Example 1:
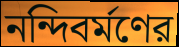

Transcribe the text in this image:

নন্দিবর্মণের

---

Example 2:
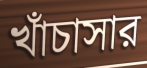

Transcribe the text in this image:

খাঁচাসার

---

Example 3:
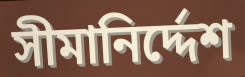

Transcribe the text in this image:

সীমানির্দ্দেশ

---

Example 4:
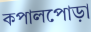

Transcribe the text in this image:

কপালপোড়া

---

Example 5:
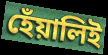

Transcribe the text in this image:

হেঁয়ালিই